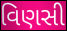
વિણસી